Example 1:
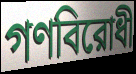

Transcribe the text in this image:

গণবিরোধী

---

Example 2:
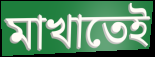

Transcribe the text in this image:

মাখাতেই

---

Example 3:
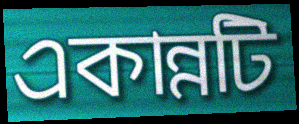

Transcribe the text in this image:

একান্নটি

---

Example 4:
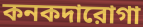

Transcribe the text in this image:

কনকদারোগা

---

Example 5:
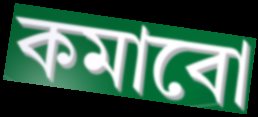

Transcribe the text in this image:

কমাবো